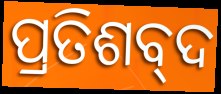
ପ୍ରତିଶବ୍‌ଦ